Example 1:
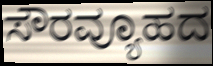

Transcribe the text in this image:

ಸೌರವ್ಯೂಹದ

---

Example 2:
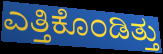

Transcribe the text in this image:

ಎತ್ತಿಕೊಂಡಿತ್ತು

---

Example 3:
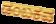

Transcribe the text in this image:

ಡಂಬಕವ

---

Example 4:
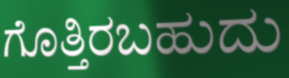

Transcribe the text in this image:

ಗೊತ್ತಿರಬಹುದು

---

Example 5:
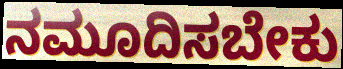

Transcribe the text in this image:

ನಮೂದಿಸಬೇಕು